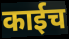
काईच